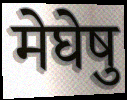
मेघेषु